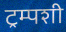
ट्रम्पशी